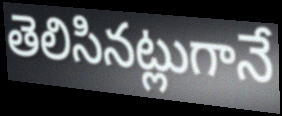
తెలిసినట్లుగానే